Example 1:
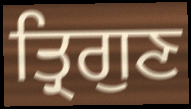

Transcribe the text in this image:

ਤ੍ਰਿਗੁਣ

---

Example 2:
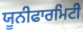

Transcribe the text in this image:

ਯੂਨੀਫਾਰਮਿਟੀ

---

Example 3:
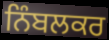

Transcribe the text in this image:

ਨਿੰਬਲਕਰ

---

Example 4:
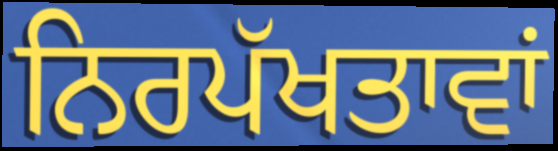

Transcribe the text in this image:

ਨਿਰਪੱਖਤਾਵਾਂ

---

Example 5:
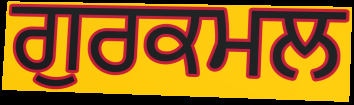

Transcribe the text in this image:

ਗੁਰਕਮਲ